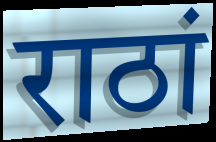
राठां